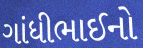
ગાંધીભાઈનો